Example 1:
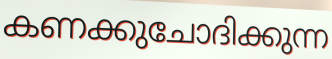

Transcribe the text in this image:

കണക്കുചോദിക്കുന്ന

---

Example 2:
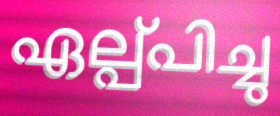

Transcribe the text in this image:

ഏല്പ്പിച്ചു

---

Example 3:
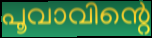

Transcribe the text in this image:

പൂവാവിന്റെ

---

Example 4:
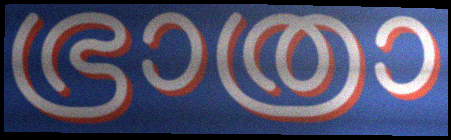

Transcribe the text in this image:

ഭ്രാത്രാ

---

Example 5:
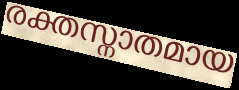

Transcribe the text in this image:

രക്തസ്നാതമായ